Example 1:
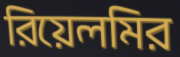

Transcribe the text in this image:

রিয়েলমির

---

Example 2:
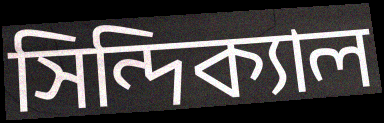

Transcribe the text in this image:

সিন্দিক্যাল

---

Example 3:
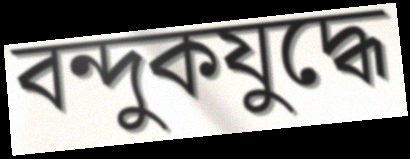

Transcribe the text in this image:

বন্দুকযুদ্ধে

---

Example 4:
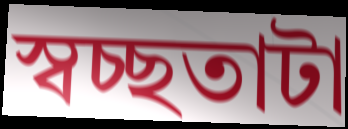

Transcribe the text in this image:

স্বচ্ছতাটা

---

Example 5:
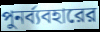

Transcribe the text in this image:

পুনর্ব্যবহারের